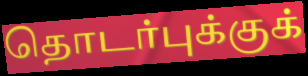
தொடர்புக்குக்